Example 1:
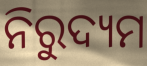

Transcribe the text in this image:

ନିରୁଦ୍ୟମ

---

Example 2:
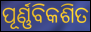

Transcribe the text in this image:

ପୂର୍ଣ୍ଣବିକଶିତ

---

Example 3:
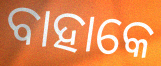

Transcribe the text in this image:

ବାହାକେ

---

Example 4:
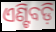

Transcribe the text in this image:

ଏଣ୍ଟିବଡ଼ି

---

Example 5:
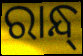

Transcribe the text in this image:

ରାନ୍ଧ୍